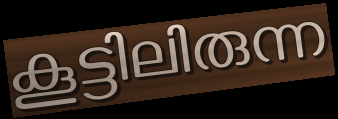
കൂട്ടിലിരുന്ന